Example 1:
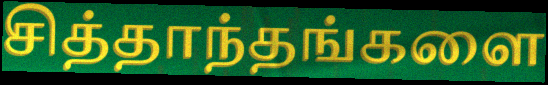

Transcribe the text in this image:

சித்தாந்தங்களை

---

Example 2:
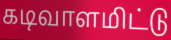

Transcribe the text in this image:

கடிவாளமிட்டு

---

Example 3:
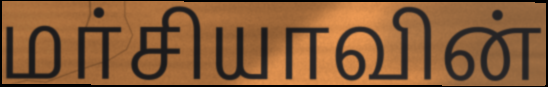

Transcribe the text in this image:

மர்சியாவின்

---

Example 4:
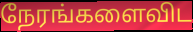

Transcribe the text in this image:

நேரங்களைவிட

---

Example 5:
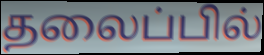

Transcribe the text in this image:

தலைப்பில்